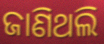
ଜାଣିଥଲି